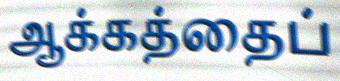
ஆக்கத்தைப்